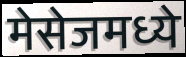
मेसेजमध्ये